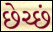
છેચ્છં